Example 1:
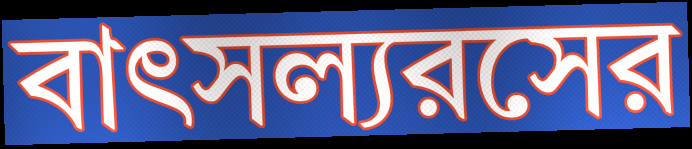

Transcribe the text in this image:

বাৎসল্যরসের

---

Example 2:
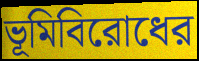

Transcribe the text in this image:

ভূমিবিরোধের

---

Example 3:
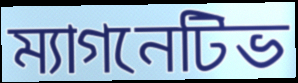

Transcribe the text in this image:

ম্যাগনেটিভ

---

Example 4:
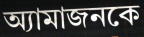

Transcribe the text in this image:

অ্যামাজনকে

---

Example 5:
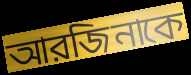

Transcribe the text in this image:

আরজিনাকে